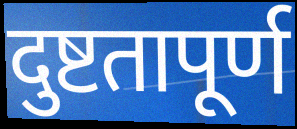
दुष्टतापूर्ण